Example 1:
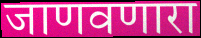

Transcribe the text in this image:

जाणवणारा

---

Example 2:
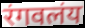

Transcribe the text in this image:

रंगवलंय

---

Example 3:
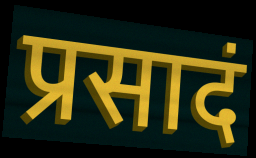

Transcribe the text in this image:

प्रसादं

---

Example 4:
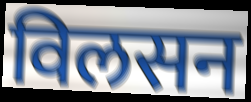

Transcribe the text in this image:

विलसन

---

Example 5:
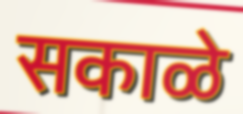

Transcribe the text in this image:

सकाळे